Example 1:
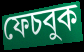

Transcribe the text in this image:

ফেচবুক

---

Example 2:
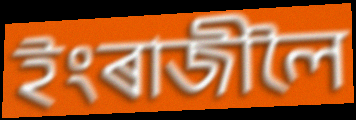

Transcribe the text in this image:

ইংৰাজীলৈ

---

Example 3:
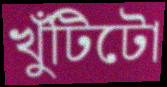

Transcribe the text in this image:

খুঁটিটো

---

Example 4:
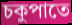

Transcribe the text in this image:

চকুপাতে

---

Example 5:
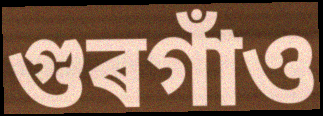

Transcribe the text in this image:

গুৰগাঁও